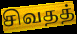
சிவதத்